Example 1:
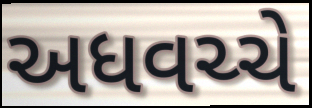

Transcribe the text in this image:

અધવચ્ચે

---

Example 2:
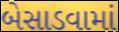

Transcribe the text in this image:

બેસાડવામાં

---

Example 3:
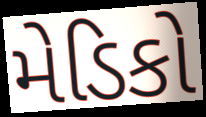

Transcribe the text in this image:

મેડિકો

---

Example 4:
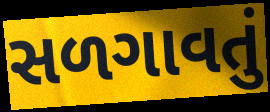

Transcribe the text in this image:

સળગાવતું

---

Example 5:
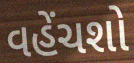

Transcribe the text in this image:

વહેંચશો